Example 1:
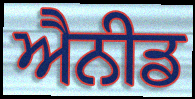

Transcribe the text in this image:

ਐਨੀਡ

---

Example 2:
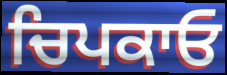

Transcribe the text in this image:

ਚਿਪਕਾਓ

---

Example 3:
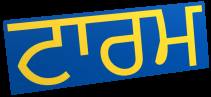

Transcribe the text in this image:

ਟਾਰਮ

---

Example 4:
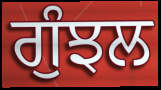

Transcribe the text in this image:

ਗੁੰਝਲ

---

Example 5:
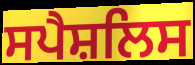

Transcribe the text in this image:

ਸਪੈਸ਼ਲਿਸ